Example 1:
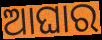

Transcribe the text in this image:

ଆଘାର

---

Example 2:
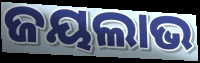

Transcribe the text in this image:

ଜୟଲାଭ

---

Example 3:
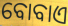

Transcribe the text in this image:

ବୋବାଏ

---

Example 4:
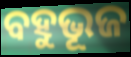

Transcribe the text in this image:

ବହୁଭୂଜ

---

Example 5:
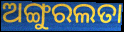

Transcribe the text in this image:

ଅଙ୍ଗୁରଲତା